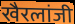
खैरलांजी